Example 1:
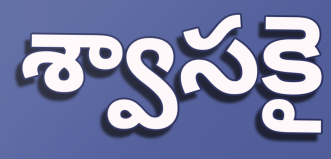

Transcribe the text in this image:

శ్వాసకై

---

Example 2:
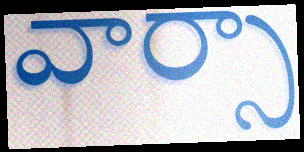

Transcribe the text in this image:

వార్సా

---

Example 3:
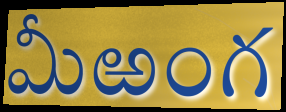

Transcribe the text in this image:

మీఱంగ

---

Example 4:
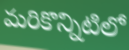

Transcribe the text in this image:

మరికొన్నిటిలో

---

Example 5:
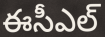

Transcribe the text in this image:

ఈసీఎల్